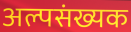
अल्पसंख्यक